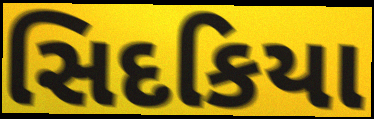
સિદકિયા